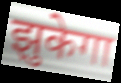
झुकेगा